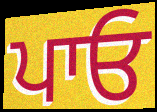
ਪਾਓ